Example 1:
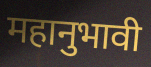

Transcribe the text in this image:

महानुभावी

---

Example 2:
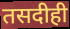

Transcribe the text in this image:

तसदीही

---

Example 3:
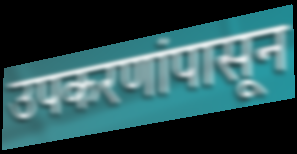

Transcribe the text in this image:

उपकरणांपासून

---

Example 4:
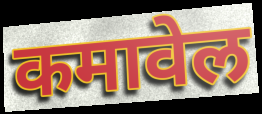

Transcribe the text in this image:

कमावेल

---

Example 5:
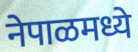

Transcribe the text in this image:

नेपाळमध्ये